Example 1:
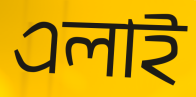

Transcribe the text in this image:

এলাই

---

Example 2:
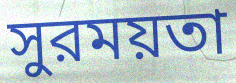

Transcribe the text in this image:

সুরময়তা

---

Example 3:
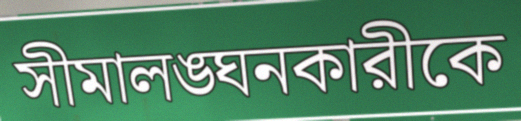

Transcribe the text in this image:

সীমালঙ্ঘনকারীকে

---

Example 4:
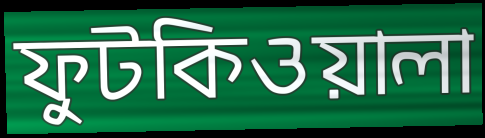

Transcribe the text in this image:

ফুটকিওয়ালা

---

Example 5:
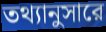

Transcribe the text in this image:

তথ্যানুসারে